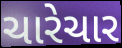
ચારેચાર